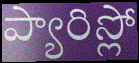
ప్యారిస్లో